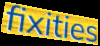
fixities